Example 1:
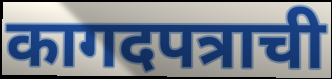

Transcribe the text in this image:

कागदपत्राची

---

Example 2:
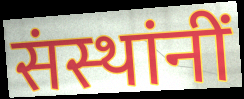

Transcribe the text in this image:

संस्थांनीं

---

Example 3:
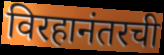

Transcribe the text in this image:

विरहानंतरची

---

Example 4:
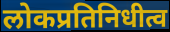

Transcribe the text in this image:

लोकप्रतिनिधीत्व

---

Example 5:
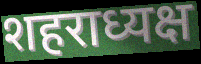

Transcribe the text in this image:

शहराध्यक्ष